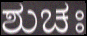
ಶುಚಃ